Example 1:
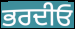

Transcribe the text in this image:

ਭਰਦੀਓ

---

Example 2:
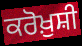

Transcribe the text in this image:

ਕਰੋਖ਼ੁਸ਼ੀ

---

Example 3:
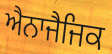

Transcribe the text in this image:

ਐਨਾਜੈਜਿਕ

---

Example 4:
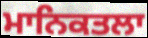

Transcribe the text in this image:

ਮਾਨਿਕਤਲਾ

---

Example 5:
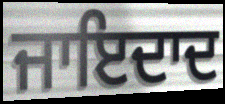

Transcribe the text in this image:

ਜਾਇਦਾਦ